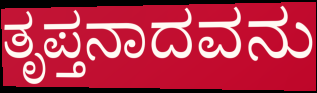
ತೃಪ್ತನಾದವನು